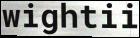
wightii